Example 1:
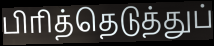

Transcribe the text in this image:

பிரித்தெடுத்துப்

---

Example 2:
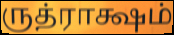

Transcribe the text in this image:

ருத்ராக்ஷம்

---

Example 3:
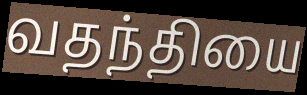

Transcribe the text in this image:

வதந்தியை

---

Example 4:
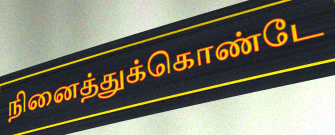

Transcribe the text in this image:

நினைத்துக்கொண்டே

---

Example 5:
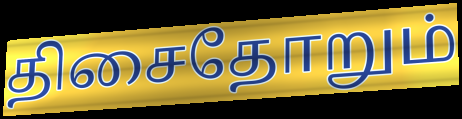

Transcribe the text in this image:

திசைதோறும்